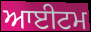
ਆਈਟਮ